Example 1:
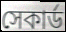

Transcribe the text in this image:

সেকার্ড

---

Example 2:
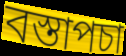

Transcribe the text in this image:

বস্তাপচা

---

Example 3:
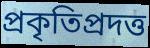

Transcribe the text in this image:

প্রকৃতিপ্রদত্ত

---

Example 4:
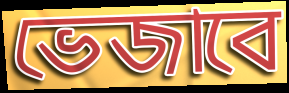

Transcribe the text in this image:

ভেজাবে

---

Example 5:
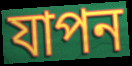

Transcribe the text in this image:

যাপন